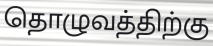
தொழுவத்திற்கு